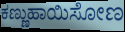
ಕಣ್ಣುಹಾಯಿಸೋಣ